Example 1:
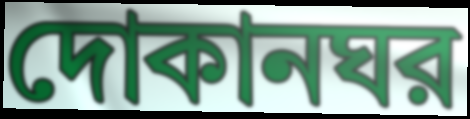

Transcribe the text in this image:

দোকানঘর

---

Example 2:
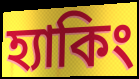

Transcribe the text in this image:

হ্যাকিং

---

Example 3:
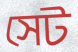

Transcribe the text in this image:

সেট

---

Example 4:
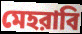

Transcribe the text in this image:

মেহরাবি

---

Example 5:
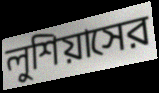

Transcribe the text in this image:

লুশিয়াসের